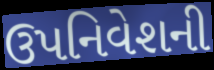
ઉપનિવેશની